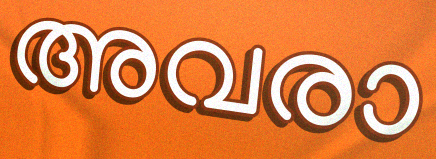
അവരാ